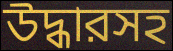
উদ্ধারসহ